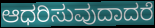
ಆಧರಿಸುವುದಾದರೆ